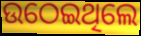
ଉଠେଇଥିଲେ